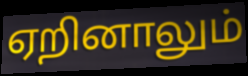
ஏறினாலும்